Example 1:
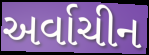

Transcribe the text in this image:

અર્વાચીન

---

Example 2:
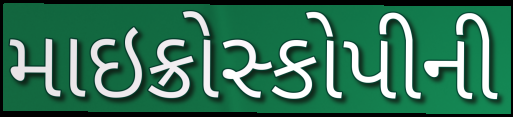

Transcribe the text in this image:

માઇક્રોસ્કોપીની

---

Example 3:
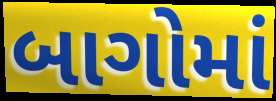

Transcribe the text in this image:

બાગોમાં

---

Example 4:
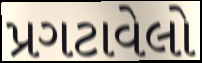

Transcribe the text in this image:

પ્રગટાવેલો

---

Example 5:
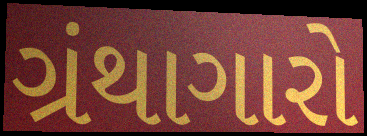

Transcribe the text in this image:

ગ્રંથાગારો